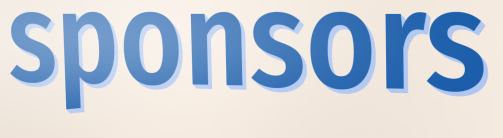
sponsors